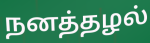
நனத்தழல்